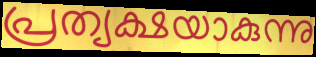
പ്രത്യക്ഷയാകുന്നു